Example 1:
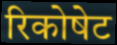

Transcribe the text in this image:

रिकोषेट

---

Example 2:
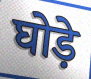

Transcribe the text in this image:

घोड़े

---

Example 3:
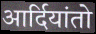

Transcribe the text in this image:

आर्दियांतो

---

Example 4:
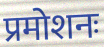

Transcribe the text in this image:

प्रमोशनः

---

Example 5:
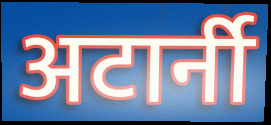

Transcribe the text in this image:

अटार्नी